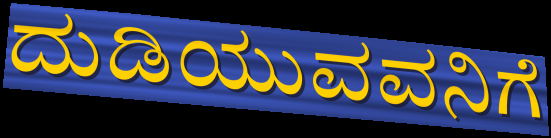
ದುಡಿಯುವವನಿಗೆ